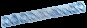
విడిచిపెడుతుందని